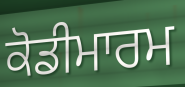
ਕੋਡੀਮਾਰਮ